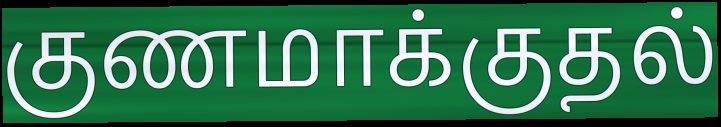
குணமாக்குதல்